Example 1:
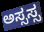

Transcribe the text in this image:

ಅಸ್ಸಸ್ಸ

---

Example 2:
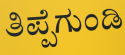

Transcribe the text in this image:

ತಿಪ್ಪೆಗುಂಡಿ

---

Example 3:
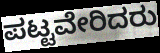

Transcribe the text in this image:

ಪಟ್ಟವೇರಿದರು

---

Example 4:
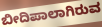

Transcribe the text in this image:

ಬೀದಿಪಾಲಾಗಿರುವ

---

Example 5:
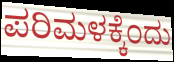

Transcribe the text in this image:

ಪರಿಮಳಕ್ಕೆಂದು